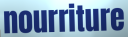
nourriture